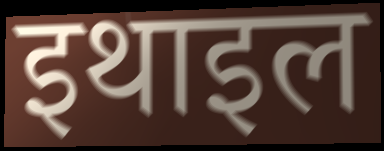
इथाइल